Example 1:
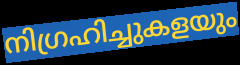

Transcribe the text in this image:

നിഗ്രഹിച്ചുകളയും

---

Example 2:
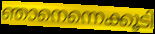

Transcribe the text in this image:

ഞാനെന്നെക്കൂടി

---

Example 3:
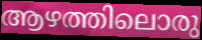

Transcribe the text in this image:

ആഴത്തിലൊരു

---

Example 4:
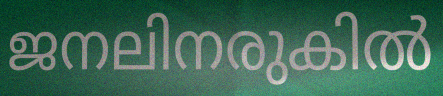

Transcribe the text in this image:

ജനലിനരുകിൽ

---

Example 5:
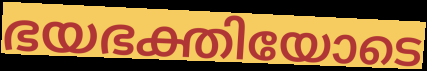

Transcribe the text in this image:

ഭയഭക്തിയോടെ